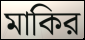
মাকির